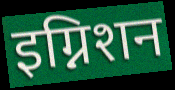
इग्निशन